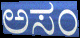
ಅಸಂ